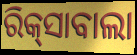
ରିକ୍‍ସାବାଲା